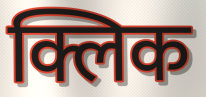
क्लिक